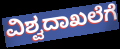
ವಿಶ್ವದಾಖಲೆಗೆ